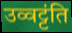
उव्वट्टंति